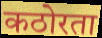
कठोरता